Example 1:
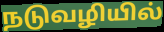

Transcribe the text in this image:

நடுவழியில்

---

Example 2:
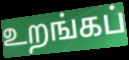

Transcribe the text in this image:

உறங்கப்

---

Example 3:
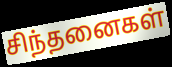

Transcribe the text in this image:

சிந்தனைகள்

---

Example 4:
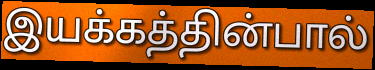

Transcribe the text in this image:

இயக்கத்தின்பால்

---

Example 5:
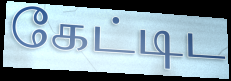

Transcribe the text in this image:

கேட்டிட